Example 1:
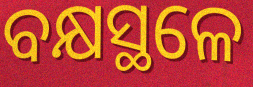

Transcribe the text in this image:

ବକ୍ଷସ୍ଥଳେ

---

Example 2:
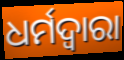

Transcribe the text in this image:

ଧର୍ମଦ୍ଵାରା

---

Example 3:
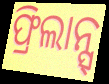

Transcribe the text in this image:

ଫ୍ରିଲାନ୍ସ୍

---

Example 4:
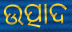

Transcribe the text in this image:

ଉତ୍ପାଦ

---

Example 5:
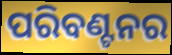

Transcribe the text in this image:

ପରିବଣ୍ଟନର